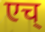
एच्